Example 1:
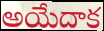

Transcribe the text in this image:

అయేదాక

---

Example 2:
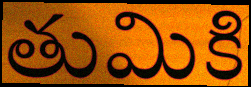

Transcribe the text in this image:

తుమికి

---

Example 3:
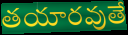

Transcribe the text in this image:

తయారవుతే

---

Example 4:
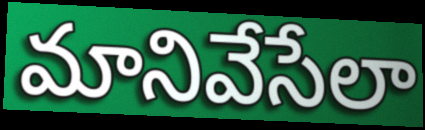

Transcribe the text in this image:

మానివేసేలా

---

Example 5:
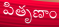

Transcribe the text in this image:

పితృణాం